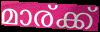
മാര്ക്ക്